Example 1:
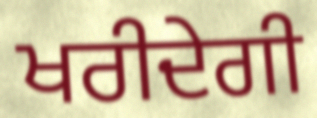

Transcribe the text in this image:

ਖਰੀਦੇਗੀ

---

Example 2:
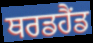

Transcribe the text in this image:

ਥਰਡਹੈਂਡ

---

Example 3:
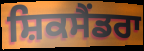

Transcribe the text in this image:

ਸ਼ਿਕਸੈਂਡਰਾ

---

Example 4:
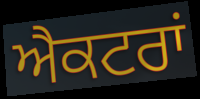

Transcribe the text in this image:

ਐਕਟਰਾਂ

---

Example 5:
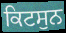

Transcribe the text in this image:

ਕਿਟਸੁਨ